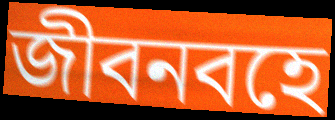
জীবনবহে